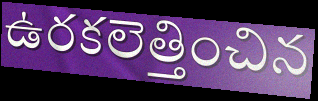
ఉరకలెత్తించిన